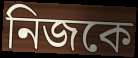
নিজকে